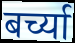
बर्च्या